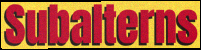
Subalterns